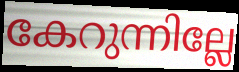
കേറുന്നില്ലേ